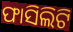
ଫାସିଲିଟି